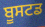
ਬੂਸਟਡ